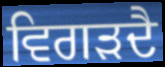
ਵਿਗੜਦੈ